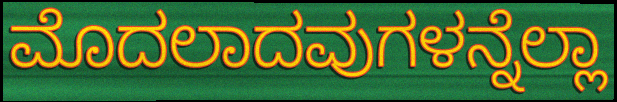
ಮೊದಲಾದವುಗಳನ್ನೆಲ್ಲಾ